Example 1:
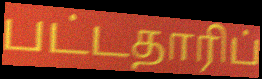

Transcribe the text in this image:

பட்டதாரிப்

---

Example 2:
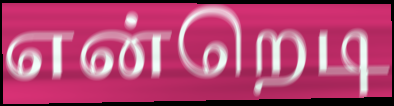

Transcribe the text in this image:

என்றெடி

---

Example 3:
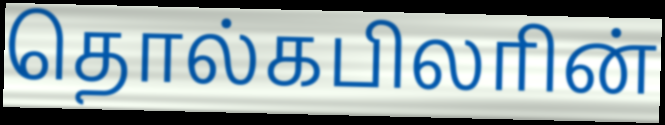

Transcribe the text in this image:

தொல்கபிலரின்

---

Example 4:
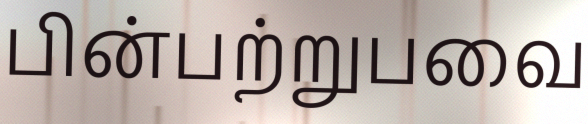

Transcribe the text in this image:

பின்பற்றுபவை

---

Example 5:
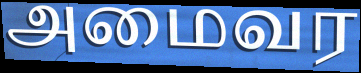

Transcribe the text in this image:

அமைவர